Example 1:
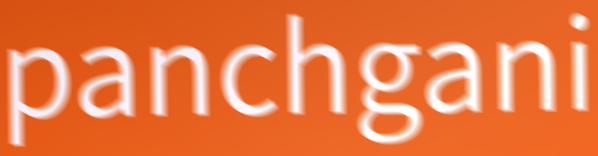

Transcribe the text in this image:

panchgani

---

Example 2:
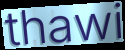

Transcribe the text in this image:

thawi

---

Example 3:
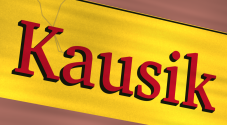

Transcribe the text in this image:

Kausik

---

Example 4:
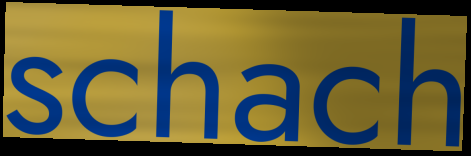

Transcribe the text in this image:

schach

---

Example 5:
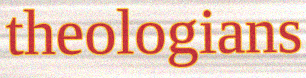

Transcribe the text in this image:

theologians